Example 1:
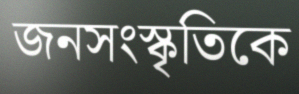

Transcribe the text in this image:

জনসংস্কৃতিকে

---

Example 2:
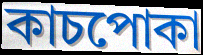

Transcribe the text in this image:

কাচপোকা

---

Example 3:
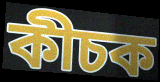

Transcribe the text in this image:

কীচক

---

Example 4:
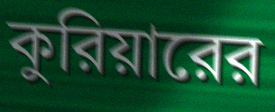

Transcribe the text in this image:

কুরিয়ারের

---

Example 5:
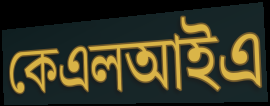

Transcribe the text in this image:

কেএলআইএ